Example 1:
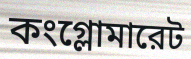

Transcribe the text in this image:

কংগ্লোমারেট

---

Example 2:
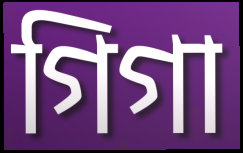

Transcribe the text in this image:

গিগা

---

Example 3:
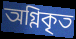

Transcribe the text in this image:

অগ্নিকৃত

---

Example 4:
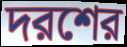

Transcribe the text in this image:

দরশের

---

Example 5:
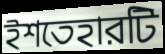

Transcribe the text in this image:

ইশতেহারটি